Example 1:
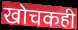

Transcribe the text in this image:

खोचकही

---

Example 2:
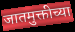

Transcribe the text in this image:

जातमुक्तीच्या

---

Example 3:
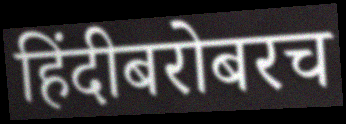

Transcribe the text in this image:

हिंदीबरोबरच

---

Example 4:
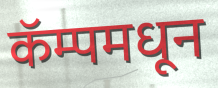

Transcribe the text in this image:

कॅम्पमधून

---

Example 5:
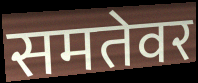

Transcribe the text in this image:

समतेवर